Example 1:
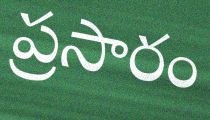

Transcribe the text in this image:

ప్రసారం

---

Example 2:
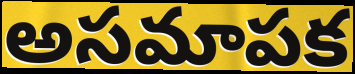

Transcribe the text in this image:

అసమాపక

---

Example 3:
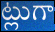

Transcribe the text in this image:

ట్లుగా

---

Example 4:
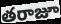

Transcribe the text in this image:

తరాజూ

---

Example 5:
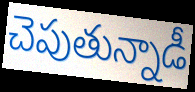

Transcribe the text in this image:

చెపుతున్నాడీ